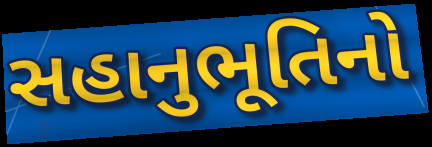
સહાનુભૂતિનો